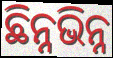
ଛିନ୍ନଭିନ୍ନ